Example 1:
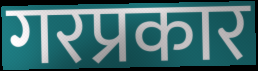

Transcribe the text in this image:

गरप्रकार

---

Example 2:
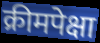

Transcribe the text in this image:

क्रीमपेक्षा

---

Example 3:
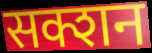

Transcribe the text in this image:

सक्शन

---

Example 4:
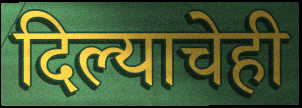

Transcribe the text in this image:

दिल्याचेही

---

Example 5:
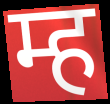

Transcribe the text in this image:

म्ह